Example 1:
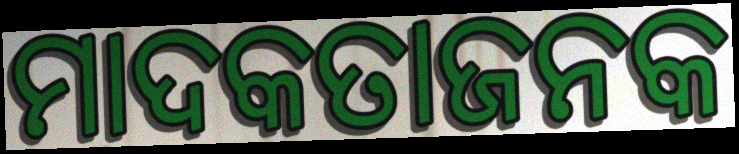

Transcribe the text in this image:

ମାଦକତାଜନକ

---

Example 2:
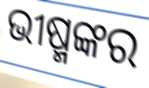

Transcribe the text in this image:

ଭୀଷ୍ମଙ୍କର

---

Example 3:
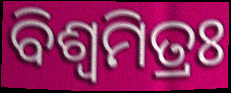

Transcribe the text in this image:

ବିଶ୍ବମିତ୍ରଃ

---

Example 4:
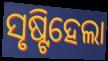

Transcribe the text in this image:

ସୃଷ୍ଟିହେଲା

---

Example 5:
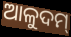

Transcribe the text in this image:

ଆଳୁଦମ୍